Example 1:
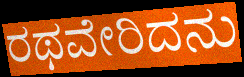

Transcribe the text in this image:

ರಥವೇರಿದನು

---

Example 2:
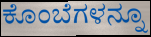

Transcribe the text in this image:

ಕೊಂಬೆಗಳನ್ನೂ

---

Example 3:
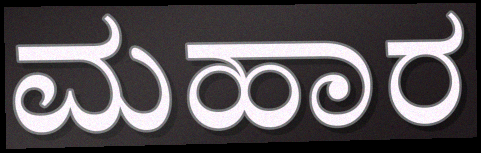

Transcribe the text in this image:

ಮಹಾರ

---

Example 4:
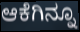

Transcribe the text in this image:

ಆಕೆಗಿನ್ನೂ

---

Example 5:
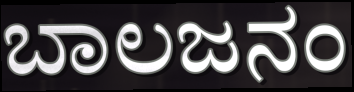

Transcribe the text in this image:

ಬಾಲಜನಂ